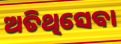
ଅତିଥିସେବା